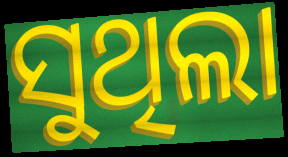
ସୁଥିଲା